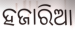
ହଜାରିଆ